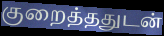
குறைத்ததுடன்